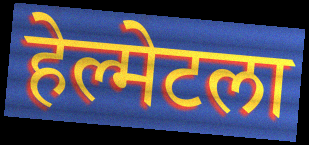
हेल्मेटला